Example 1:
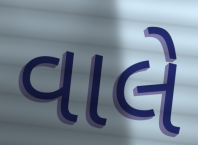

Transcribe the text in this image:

વાલે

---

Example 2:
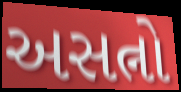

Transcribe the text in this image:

અસત્નો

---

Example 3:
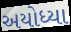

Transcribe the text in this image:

અયોધ્યા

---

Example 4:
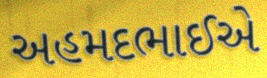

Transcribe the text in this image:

અહમદભાઈએ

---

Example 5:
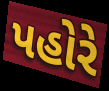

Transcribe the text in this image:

પહોરે